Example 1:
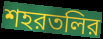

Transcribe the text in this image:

শহরতলির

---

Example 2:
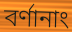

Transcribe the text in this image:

বর্ণানাং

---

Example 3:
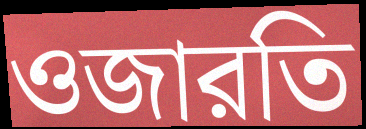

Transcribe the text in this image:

ওজারতি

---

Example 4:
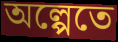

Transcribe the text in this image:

অল্পেতে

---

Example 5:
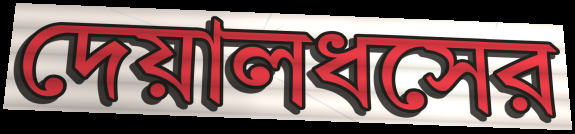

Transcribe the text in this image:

দেয়ালধসের